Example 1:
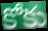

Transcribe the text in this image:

కోకు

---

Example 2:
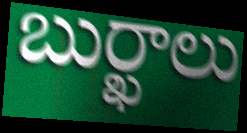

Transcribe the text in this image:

బుర్ఖాలు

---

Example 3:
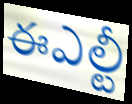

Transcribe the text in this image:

ఈఎల్టీ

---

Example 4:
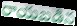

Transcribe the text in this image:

రాయబడిన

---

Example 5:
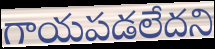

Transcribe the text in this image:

గాయపడలేదని